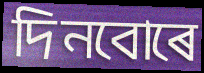
দিনবোৰে